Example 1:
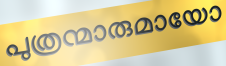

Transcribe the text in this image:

പുത്രന്മാരുമായോ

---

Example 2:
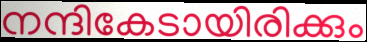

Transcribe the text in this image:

നന്ദികേടായിരിക്കും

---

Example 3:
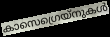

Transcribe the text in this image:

കാസെഗ്രെയ്നുകൾ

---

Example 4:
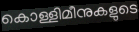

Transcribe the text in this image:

കൊള്ളിമീനുകളുടെ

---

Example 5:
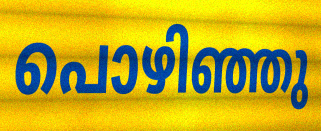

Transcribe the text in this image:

പൊഴിഞ്ഞു